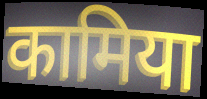
कामिया